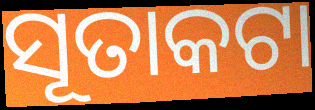
ସୂତାକଟା